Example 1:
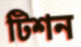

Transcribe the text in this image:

টিশন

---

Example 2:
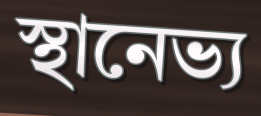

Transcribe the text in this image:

স্থানেভ্য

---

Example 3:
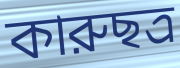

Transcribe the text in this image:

কারুছত্র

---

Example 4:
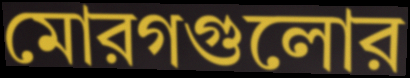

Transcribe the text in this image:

মোরগগুলোর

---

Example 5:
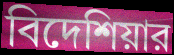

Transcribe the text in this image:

বিদেশিয়ার